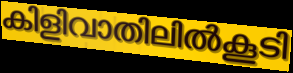
കിളിവാതിലിൽകൂടി